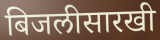
बिजलीसारखी